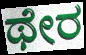
ಥೇರ